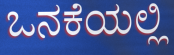
ಒನಕೆಯಲ್ಲಿ